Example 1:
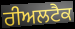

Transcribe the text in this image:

ਰੀਅਲਟੈਕ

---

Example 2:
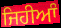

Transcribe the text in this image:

ਜਿਹੀਆੰ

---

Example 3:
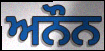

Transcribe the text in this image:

ਅਨੌਨ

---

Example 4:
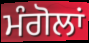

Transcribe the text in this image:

ਮੰਗੋਲਾਂ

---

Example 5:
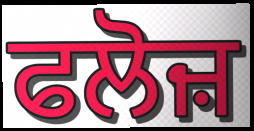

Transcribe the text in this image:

ਫਲੋਜ਼